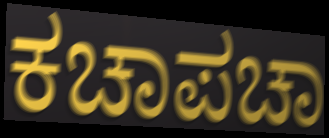
ಕಚಾಪಚಾ